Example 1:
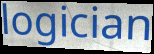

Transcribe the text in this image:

logician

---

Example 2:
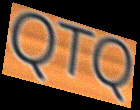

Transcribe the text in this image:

QTQ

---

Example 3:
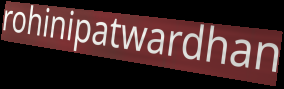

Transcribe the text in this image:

rohinipatwardhan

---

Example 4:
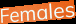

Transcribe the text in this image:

Females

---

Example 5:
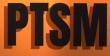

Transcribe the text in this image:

PTSM